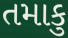
તમાકુ